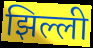
झिल्ली